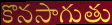
కొనసాగుతు